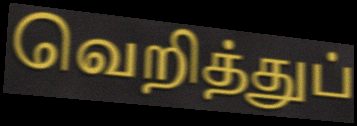
வெறித்துப்